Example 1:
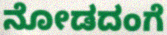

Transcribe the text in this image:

ನೋಡದಂಗೆ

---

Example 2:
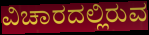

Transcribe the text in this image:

ವಿಚಾರದಲ್ಲಿರುವ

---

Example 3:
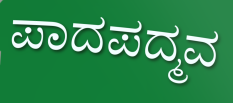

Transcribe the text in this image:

ಪಾದಪದ್ಮವ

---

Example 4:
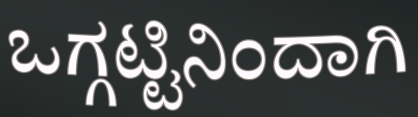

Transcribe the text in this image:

ಒಗ್ಗಟ್ಟಿನಿಂದಾಗಿ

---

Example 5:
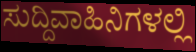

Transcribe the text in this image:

ಸುದ್ದಿವಾಹಿನಿಗಳಲ್ಲಿ